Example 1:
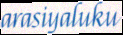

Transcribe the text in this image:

arasiyaluku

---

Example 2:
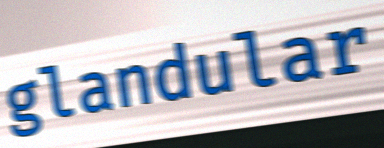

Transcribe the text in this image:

glandular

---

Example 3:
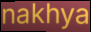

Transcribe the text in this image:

nakhya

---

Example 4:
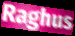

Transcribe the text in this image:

Raghus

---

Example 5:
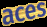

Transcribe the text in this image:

aces